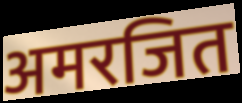
अमरजित